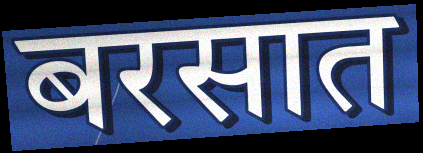
बरसात